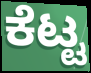
ಕೆಟ್ಟ